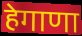
हेगाणा